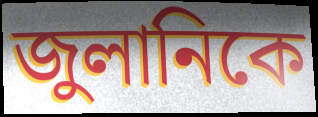
জুলানিকে